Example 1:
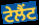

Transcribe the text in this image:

ਟੇਲੈਂਟ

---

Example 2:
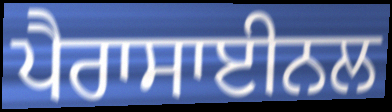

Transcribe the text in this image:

ਪੈਰਾਸਾਈਨਲ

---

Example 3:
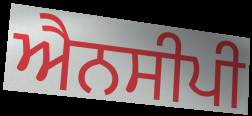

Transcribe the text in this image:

ਐਨਸੀਪੀ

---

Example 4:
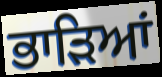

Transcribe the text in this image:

ਭਾੜਿਆਂ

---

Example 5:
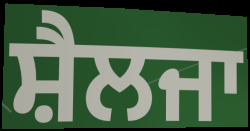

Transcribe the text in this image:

ਸ਼ੈਲਜਾ